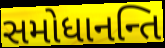
સમોધાનન્તિ